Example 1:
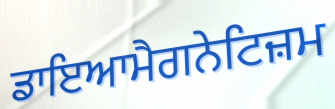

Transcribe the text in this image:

ਡਾਇਆਮੈਗਨੇਟਿਜ਼ਮ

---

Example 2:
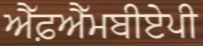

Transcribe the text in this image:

ਐੱਫ਼ਐੱਮਬੀਏਪੀ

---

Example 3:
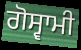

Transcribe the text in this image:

ਗੋਸ੍ਵਾਮੀ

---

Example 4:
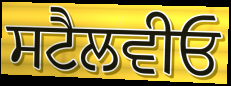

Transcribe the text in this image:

ਸਟੈਲਵੀਓ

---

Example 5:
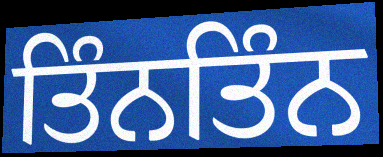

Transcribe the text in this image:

ਤਿੰਨਤਿੰਨ